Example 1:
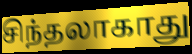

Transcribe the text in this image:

சிந்தலாகாது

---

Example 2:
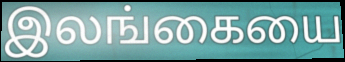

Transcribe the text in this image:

இலங்கையை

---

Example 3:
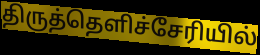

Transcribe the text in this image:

திருத்தெளிச்சேரியில்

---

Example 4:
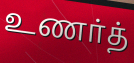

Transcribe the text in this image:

உணர்த்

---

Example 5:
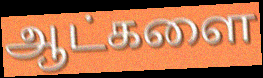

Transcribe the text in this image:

ஆட்களை